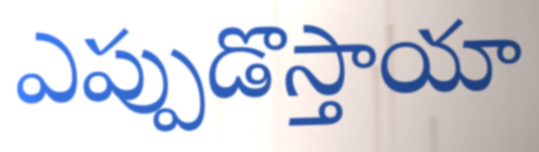
ఎప్పుడొస్తాయా